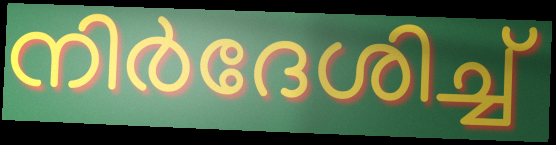
നിർദേശിച്ച്